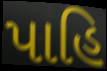
પાહિ